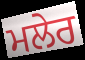
ਮਲੇਰ